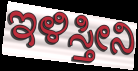
ಇಳಿಸ್ತೀನಿ